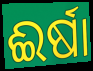
ଈର୍ଷା